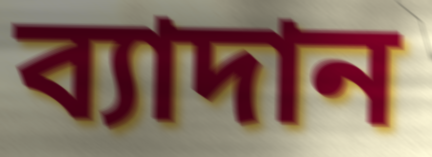
ব্যাদান